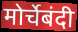
मोर्चेबंदी